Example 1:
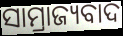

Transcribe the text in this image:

ସାମ୍ରାଜ୍ୟବାଦ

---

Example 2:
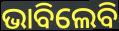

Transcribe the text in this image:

ଭାବିଲେବି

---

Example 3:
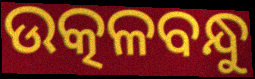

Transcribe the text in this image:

ଉତ୍କଳବନ୍ଧୁ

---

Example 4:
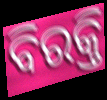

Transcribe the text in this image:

ବିରକ୍ତି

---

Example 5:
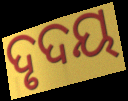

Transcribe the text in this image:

ଦୃଦୟ